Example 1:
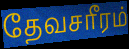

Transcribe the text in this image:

தேவசரீரம்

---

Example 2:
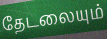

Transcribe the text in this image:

தேடலையும்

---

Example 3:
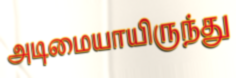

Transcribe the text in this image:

அடிமையாயிருந்து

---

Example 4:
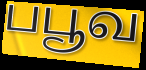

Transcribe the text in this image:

பபூவ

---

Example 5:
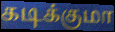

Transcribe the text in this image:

கடிக்குமா